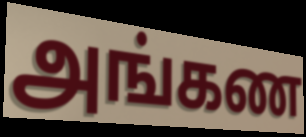
அங்கண